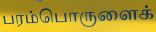
பரம்பொருளைக்